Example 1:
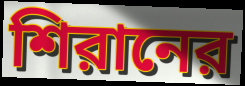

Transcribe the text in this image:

শিরানের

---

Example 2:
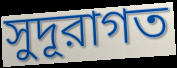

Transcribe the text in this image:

সুদূরাগত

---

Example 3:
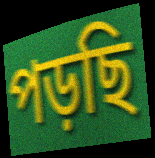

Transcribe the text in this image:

পড়ছি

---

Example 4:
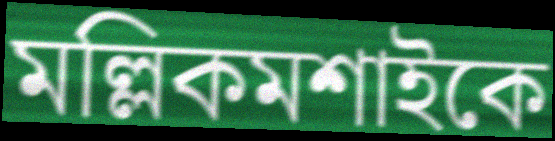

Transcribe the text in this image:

মল্লিকমশাইকে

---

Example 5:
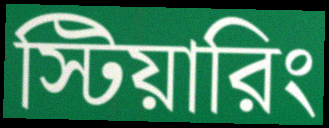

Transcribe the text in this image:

স্টিয়ারিং